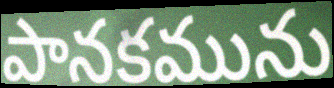
పానకమును